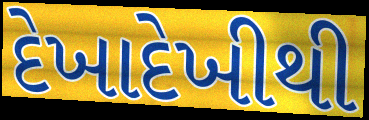
દેખાદેખીથી